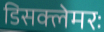
डिसक्लेमरः